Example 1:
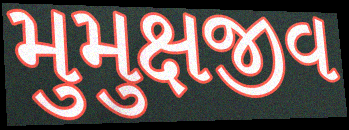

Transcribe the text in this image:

મુમુક્ષજીવ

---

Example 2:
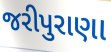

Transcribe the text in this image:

જરીપુરાણા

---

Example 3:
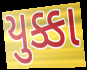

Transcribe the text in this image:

યુક્કા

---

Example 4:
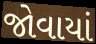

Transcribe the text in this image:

જોવાયાં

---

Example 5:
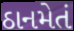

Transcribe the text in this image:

ઠાનમેતં